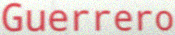
Guerrero